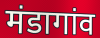
मंडागांव